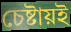
চেষ্টায়ই